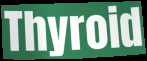
Thyroid